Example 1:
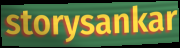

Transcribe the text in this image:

storysankar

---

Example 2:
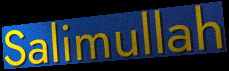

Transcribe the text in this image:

Salimullah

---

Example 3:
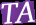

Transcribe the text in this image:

TA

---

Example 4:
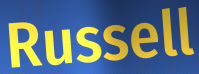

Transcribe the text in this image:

Russell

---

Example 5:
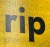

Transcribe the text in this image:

rip